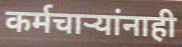
कर्मचाऱ्यांनाही